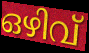
ഒഴിവ്